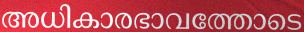
അധികാരഭാവത്തോടെ